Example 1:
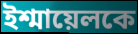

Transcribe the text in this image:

ইশ্মায়েলকে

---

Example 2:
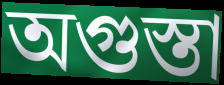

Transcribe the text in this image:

অগুস্তা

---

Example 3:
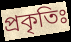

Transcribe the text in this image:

প্রকৃতিঃ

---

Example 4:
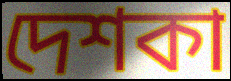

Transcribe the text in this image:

দেশকা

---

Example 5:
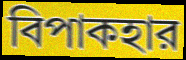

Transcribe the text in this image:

বিপাকহার